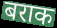
बराक